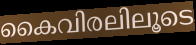
കൈവിരലിലൂടെ